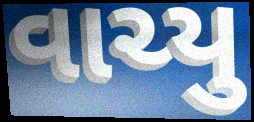
વાચ્યુ